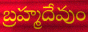
బ్రహ్మదేవుం